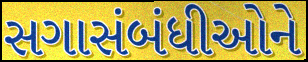
સગાસંબંધીઓને